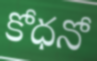
కోధనో